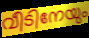
വീടിനേയും